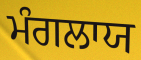
ਮੰਗਲਾਯ